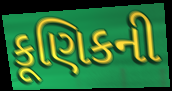
કૂણિકની